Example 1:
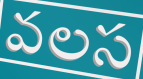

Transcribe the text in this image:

వలస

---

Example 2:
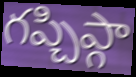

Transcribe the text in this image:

గప్చిప్గా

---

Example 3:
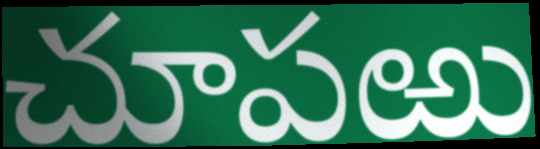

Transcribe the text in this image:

చూపఱు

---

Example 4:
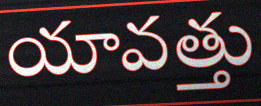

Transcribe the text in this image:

యావత్తు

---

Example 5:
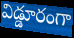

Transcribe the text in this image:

విడ్డూరంగా